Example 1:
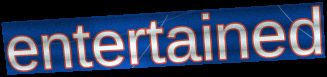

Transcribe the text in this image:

entertained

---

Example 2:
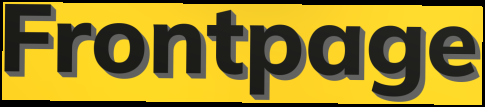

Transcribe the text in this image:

Frontpage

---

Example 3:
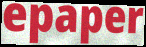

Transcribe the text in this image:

epaper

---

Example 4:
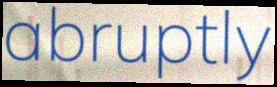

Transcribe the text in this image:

abruptly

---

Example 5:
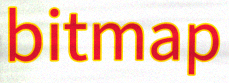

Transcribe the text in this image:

bitmap